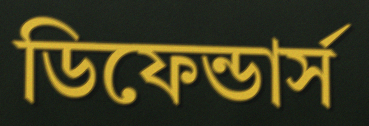
ডিফেন্ডার্স